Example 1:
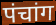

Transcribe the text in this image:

पंचांग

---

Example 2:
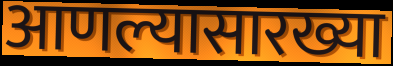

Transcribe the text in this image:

आणल्यासारख्या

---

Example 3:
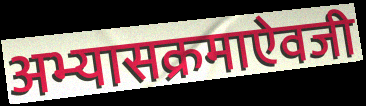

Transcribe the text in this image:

अभ्यासक्रमाऐवजी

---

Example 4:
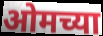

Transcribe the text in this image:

ओमच्या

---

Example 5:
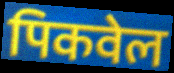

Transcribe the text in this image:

पिकवेल